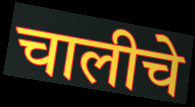
चालीचे